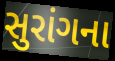
સુરાંગના